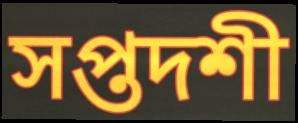
সপ্তদশী